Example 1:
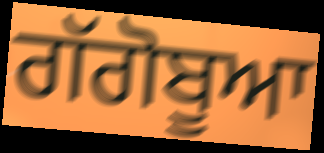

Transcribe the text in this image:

ਗੱਗੋਬੂਆ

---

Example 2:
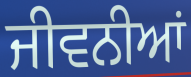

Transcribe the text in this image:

ਜੀਵਨੀਆਂ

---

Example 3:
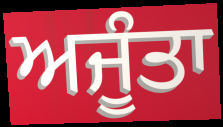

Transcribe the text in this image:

ਅਜੂੰਤਾ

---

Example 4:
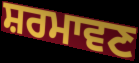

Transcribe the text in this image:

ਸ਼ਰਮਾਵਣ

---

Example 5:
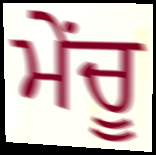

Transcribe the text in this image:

ਮੇਂਚੂ